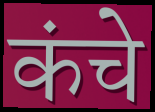
कंचे